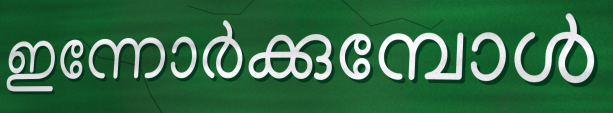
ഇന്നോർക്കുമ്പോൾ